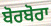
ਬੋਰਬੋਰਾ